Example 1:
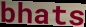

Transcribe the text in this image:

bhats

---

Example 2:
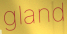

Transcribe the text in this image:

gland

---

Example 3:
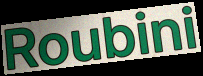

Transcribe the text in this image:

Roubini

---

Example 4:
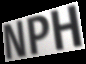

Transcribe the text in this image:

NPH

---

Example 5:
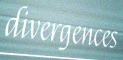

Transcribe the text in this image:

divergences